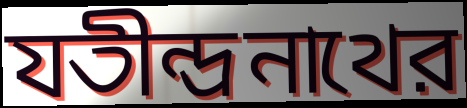
যতীন্দ্রনাথের